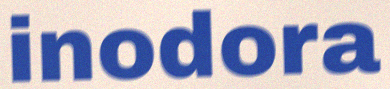
inodora